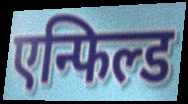
एन्फिल्ड